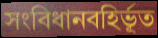
সংবিধানবহির্ভূত